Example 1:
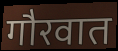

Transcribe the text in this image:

गौरवात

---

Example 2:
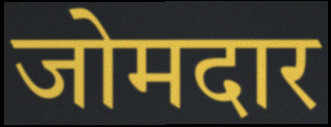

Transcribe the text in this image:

जोमदार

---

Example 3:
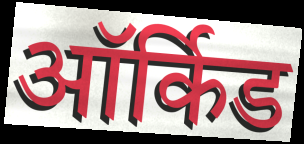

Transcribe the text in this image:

ऑर्किड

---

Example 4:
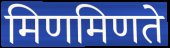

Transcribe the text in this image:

मिणमिणते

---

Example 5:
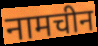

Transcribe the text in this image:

नामचीन